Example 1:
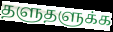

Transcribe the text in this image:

தளுதளுக்க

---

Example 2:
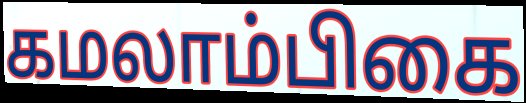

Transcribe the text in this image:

கமலாம்பிகை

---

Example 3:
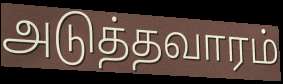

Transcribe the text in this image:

அடுத்தவாரம்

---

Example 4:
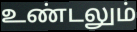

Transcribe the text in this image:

உண்டலும்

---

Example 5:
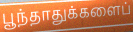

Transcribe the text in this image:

பூந்தாதுக்களைப்